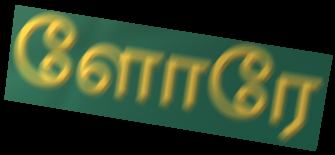
ளோரே